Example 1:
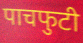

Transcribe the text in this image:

पाचफुटी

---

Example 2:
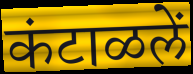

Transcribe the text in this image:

कंटाळलें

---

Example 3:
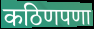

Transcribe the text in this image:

कठिणपणा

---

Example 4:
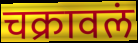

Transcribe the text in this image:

चक्रावलं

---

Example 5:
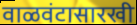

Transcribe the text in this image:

वाळवंटासारखी